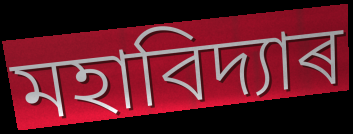
মহাবিদ্যাৰ